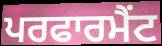
ਪਰਫਾਰਮੈਂਟ